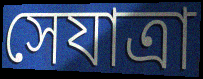
সেযাত্রা